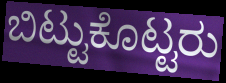
ಬಿಟ್ಟುಕೊಟ್ಟರು